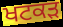
ਖਟਕੜ